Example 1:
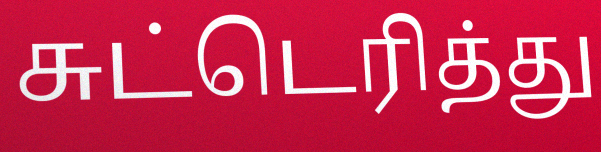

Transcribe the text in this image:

சுட்டெரித்து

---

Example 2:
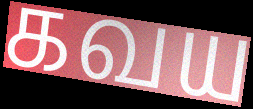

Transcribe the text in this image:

கவய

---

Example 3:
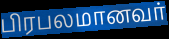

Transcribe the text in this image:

பிரபலமானவர்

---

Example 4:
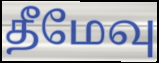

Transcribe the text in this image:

தீமேவு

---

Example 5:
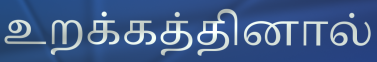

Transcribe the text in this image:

உறக்கத்தினால்